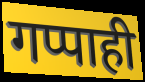
गप्पाही